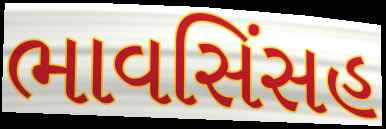
ભાવસિંસહ